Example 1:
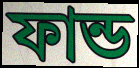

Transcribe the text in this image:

ফান্ড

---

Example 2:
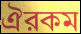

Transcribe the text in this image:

ঐরকম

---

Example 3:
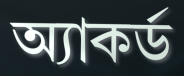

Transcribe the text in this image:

অ্যাকর্ড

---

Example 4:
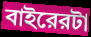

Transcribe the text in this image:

বাইরেরটা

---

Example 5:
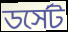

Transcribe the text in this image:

ডর্সেট